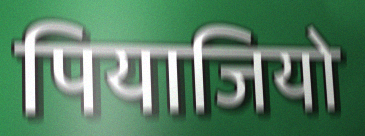
पियाजियो